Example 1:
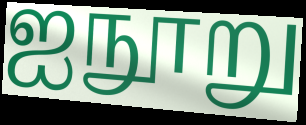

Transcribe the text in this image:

ஐநூறு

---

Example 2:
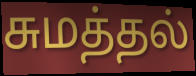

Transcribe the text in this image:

சுமத்தல்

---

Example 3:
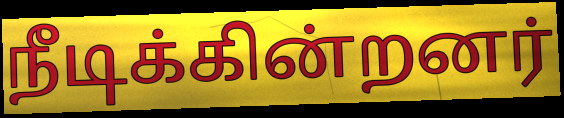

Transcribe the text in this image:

நீடிக்கின்றனர்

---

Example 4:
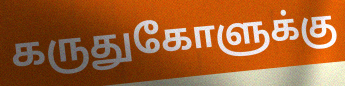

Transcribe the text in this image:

கருதுகோளுக்கு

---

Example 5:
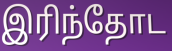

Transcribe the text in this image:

இரிந்தோட